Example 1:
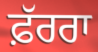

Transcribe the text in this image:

ਫ਼ੱਰਰਾ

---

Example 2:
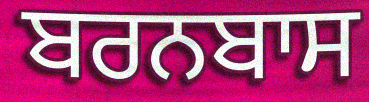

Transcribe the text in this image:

ਬਰਨਬਾਸ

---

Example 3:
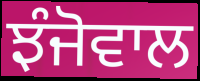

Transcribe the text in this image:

ਝੰਜੋਵਾਲ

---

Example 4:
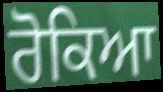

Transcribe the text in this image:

ਰੋਕਿਆ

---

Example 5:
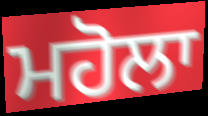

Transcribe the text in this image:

ਮਹੋਲਾ